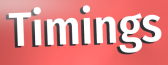
Timings